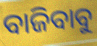
ବାଜିବାବୁ